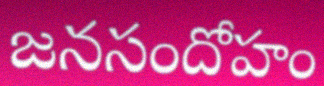
జనసందోహం